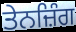
ਤੇਨਜ਼ਿੰਗ